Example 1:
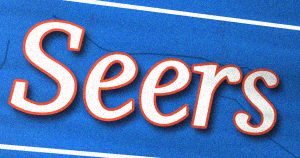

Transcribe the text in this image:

Seers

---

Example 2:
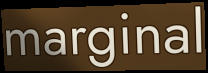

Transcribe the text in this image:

marginal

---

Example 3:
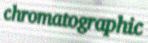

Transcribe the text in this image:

chromatographic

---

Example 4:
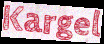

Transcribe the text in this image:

Kargel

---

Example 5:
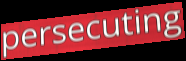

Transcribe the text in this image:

persecuting